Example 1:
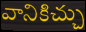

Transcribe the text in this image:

వానికిచ్చు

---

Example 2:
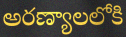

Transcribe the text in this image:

అరణ్యాలలోకి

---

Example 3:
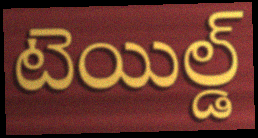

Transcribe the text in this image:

టెయిల్డ్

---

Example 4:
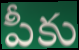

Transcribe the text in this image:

పీకు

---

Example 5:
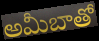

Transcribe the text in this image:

అమీబాతో